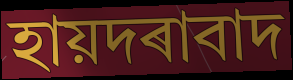
হায়দৰাবাদ